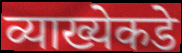
व्याख्येकडे